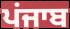
ਪਂਜਾਬ